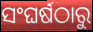
ସଂଘର୍ଷଠାରୁ